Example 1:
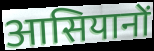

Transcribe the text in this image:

आसियानों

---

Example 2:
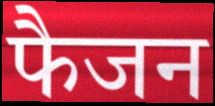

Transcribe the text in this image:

फैजन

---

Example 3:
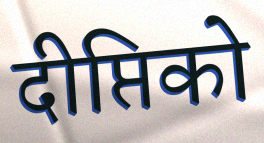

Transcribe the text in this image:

दीप्तिको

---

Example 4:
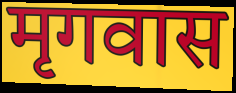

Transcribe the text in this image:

मृगवास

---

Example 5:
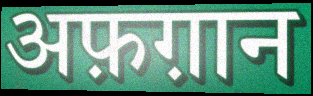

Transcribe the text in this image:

अफ़ग़ान